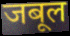
जबूल